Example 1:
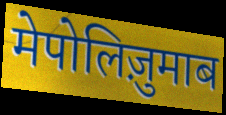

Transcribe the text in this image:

मेपोलिज़ुमाब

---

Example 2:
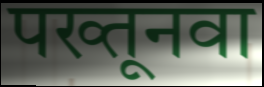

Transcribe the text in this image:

पख्तूनवा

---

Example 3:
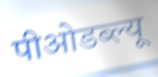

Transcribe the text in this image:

पीओडब्ल्यू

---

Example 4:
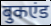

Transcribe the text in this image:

बुकएंड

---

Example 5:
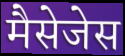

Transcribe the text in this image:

मैसेजेस